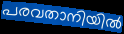
പരവതാനിയിൽ